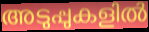
അടുപ്പുകളിൽ